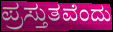
ಪ್ರಸ್ತುತವೆಂದು